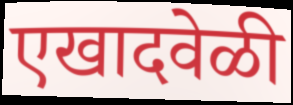
एखादवेळी